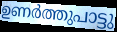
ഉണർത്തുപാട്ടു